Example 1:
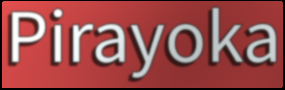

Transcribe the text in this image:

Pirayoka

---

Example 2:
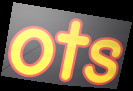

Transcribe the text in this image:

ots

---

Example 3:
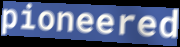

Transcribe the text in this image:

pioneered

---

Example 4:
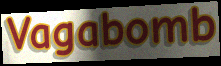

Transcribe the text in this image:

Vagabomb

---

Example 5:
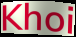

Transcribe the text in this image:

Khoi